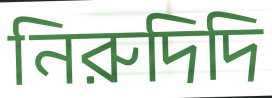
নিরুদিদি